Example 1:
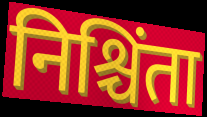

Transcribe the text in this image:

निश्चिंता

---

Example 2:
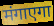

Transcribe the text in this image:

मंगाएगा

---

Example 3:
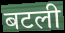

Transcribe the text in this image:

बटली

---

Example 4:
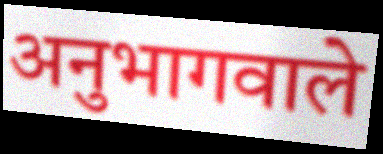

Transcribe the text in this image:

अनुभागवाले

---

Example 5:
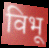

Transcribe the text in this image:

विभू